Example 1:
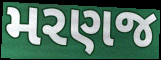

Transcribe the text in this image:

મરણજ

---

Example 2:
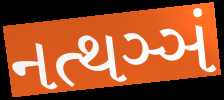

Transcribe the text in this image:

નત્થઞ્ઞં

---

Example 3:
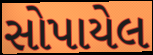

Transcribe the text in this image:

સોપાયેલ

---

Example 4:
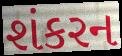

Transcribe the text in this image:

શંકરન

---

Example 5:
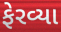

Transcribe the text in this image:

ફેરવ્યા